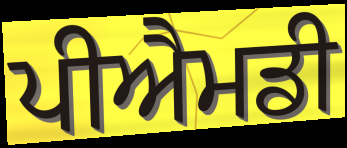
ਪੀਐਮਡੀ